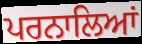
ਪਰਨਾਲਿਆਂ